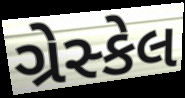
ગ્રેસ્કેલ